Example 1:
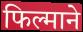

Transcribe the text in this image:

फिल्‍माने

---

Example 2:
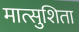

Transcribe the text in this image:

मात्सुशिता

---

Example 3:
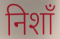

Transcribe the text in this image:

निशाँ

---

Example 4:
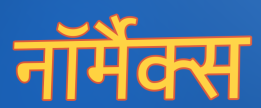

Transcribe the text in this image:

नॉर्मैक्स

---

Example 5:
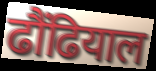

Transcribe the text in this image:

ढौंढियाल